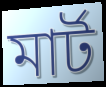
মার্ট